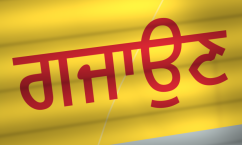
ਗਜਾਉਣ